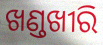
ଖଣ୍ଡଖୀରି